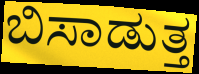
ಬಿಸಾಡುತ್ತ